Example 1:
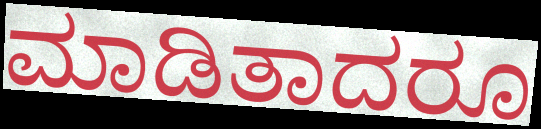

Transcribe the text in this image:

ಮಾಡಿತಾದರೂ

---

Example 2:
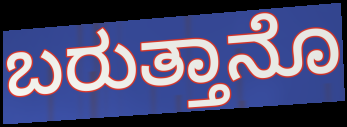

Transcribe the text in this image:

ಬರುತ್ತಾನೊ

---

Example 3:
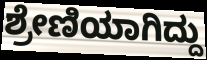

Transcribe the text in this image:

ಶ್ರೇಣಿಯಾಗಿದ್ದು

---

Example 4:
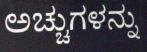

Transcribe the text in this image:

ಅಚ್ಚುಗಳನ್ನು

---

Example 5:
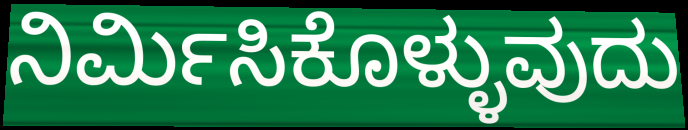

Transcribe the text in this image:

ನಿರ್ಮಿಸಿಕೊಳ್ಳುವುದು